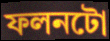
ফলনটো